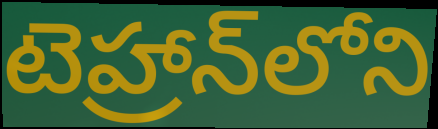
టెహ్రాన్‌లోని